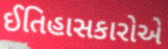
ઈતિહાસકારોએ